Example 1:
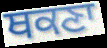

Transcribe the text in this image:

ਥਕਣਾ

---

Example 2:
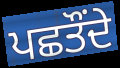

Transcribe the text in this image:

ਪਛਤੌਂਦੇ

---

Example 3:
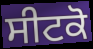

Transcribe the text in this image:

ਸੀਟਕੋ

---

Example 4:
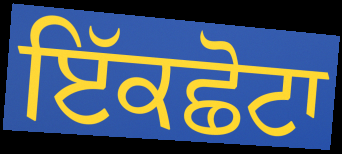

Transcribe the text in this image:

ਇੱਕਛੋਟਾ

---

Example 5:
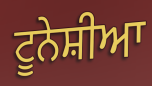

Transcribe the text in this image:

ਟੂਨੇਸ਼ੀਆ